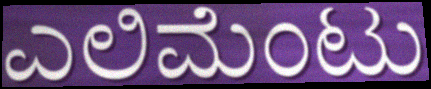
ಎಲಿಮೆಂಟು